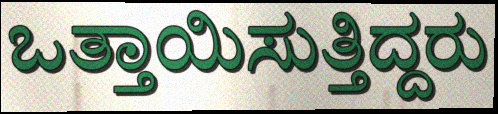
ಒತ್ತಾಯಿಸುತ್ತಿದ್ದರು